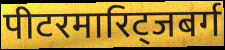
पीटरमारिट्जबर्ग